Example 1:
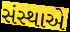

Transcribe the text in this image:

સંસ્થાએ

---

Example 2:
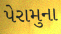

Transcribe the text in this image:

પેરામુના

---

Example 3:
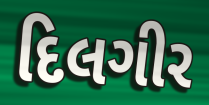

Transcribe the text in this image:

દિલગીર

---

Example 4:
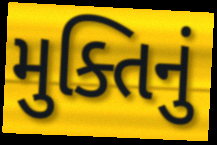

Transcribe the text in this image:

મુક્તિનું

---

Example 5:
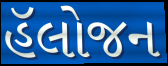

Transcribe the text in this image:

હૅલોજન